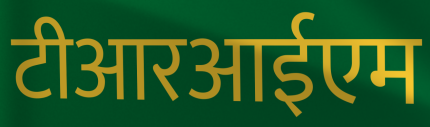
टीआरआईएम